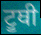
ਟੂਥੀ